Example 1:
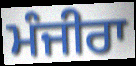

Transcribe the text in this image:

ਮੰਜੀਰਾ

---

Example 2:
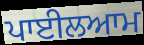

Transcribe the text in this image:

ਪਾਈਲਆਮ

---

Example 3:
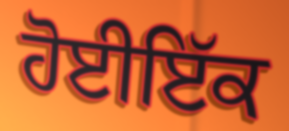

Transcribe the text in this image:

ਹੋਈਇੱਕ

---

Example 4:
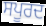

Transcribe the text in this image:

ਸਪੂਰਦ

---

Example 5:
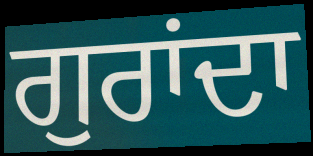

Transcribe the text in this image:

ਗੁਰਾਂਦਾ